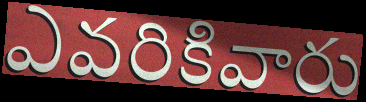
ఎవరికివారు